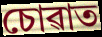
চোৱাত